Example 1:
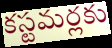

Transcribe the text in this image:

కస్టమర్లకు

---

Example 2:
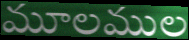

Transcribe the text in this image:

మూలముల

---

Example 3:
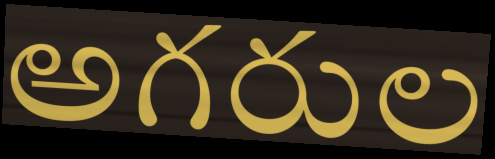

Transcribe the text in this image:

అగరుల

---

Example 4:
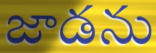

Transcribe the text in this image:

జాడను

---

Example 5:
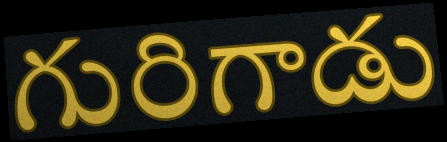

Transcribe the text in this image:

గురిగాడు